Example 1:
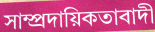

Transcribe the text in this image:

সাম্প্রদায়িকতাবাদী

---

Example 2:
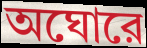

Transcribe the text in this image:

অঘোরে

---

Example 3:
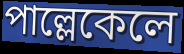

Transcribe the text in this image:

পাল্লেকেলে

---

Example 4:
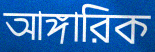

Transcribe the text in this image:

আঙ্গারিক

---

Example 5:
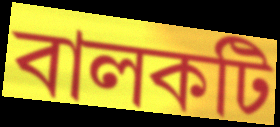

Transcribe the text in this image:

বালকটি